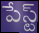
పేస్ట్